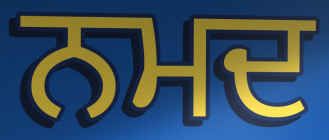
ਨਮਦ